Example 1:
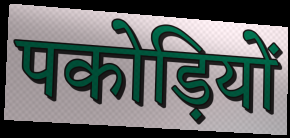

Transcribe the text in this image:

पकोड़ियों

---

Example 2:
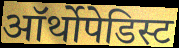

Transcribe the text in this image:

ऑर्थोपेडिस्ट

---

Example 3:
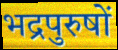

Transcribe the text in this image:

भद्रपुरुषों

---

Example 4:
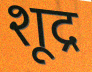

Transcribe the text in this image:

शूद्र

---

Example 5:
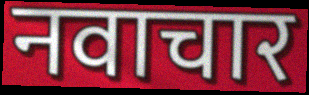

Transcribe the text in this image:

नवाचार